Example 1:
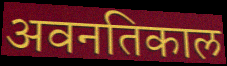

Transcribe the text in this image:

अवनतिकाल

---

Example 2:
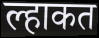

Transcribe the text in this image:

ल्हाकत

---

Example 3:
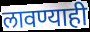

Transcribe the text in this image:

लावण्याही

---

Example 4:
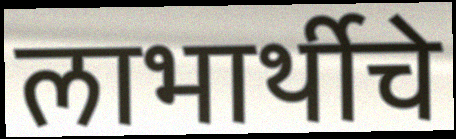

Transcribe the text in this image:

लाभार्थीचे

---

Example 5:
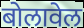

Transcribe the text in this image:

बोलावेल